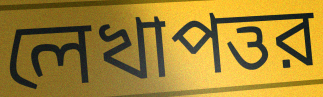
লেখাপত্তর